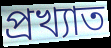
প্ৰখ্যাত